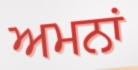
ਅਮਨਾਂ